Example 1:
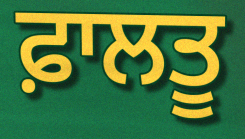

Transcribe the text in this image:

ਫ਼ਾਲਤੂ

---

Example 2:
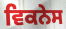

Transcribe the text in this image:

ਵਿਕਨੇਸ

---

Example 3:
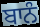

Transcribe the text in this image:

ਬਾਨੰ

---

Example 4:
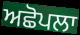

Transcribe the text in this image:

ਅਛੋਪਲਾ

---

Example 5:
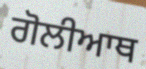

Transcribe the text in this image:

ਗੋਲੀਆਥ